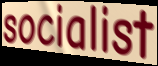
socialist